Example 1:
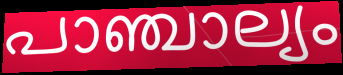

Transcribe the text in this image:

പാഞ്ചാല്യം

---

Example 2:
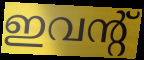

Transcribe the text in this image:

ഇവന്റ്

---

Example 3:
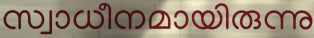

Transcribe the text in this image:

സ്വാധീനമായിരുന്നു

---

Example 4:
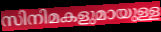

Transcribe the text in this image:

സിനിമകളുമായുള്ള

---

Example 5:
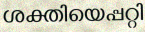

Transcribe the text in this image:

ശക്തിയെപ്പറ്റി